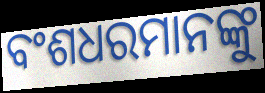
ବଂଶଧରମାନଙ୍କୁ